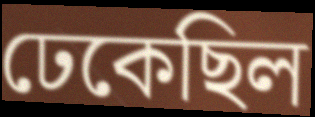
ঢেকেছিল